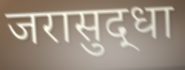
जरासुद्धा